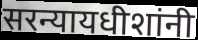
सरन्यायधीशांनी